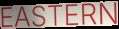
EASTERN